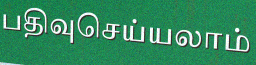
பதிவுசெய்யலாம்